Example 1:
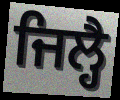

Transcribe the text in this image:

ਜਿਲ੍ਹੈ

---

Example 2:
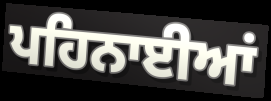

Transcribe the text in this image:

ਪਹਿਨਾਈਆਂ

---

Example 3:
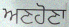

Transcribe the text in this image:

ਅਣਹੋਣਾ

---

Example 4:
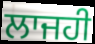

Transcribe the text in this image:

ਲਾਜਹੀ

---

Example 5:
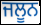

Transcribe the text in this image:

ਜਲੂਨ